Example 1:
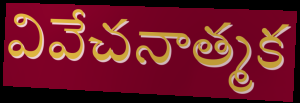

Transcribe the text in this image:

వివేచనాత్మక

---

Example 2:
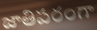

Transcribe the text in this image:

జాతిపరంగా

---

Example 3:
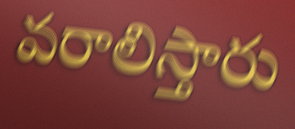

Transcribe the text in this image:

వరాలిస్తారు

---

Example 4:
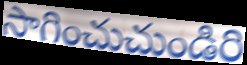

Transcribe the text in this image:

సాగించుచుండిరి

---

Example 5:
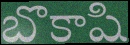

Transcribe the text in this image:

బొకాషి